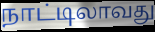
நாட்டிலாவது